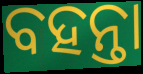
ବହନ୍ତା